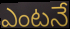
ఎంటనే